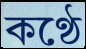
কণ্ঠে